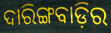
ଦାରିଙ୍ଗବାଡ଼ିର